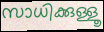
സാധിക്കുള്ളൂ